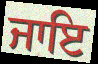
ਜਾਇ